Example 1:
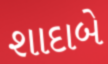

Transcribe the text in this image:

શાદાબે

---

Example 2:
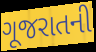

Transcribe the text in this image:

ગૂજરાતની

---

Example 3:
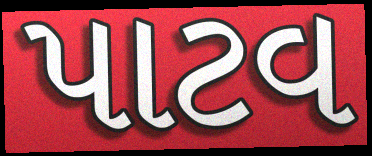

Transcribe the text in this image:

પાટવ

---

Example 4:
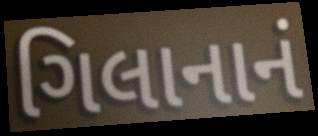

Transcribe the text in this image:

ગિલાનાનં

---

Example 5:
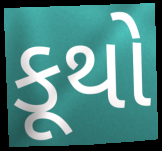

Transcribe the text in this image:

કૂથો